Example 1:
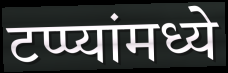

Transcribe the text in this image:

टप्प्यांमध्ये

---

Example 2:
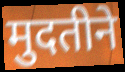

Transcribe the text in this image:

मुदतीने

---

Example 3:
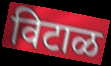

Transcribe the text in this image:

विटाळ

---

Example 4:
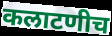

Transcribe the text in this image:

कलाटणीच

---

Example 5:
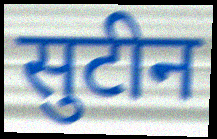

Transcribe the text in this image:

सुटीन